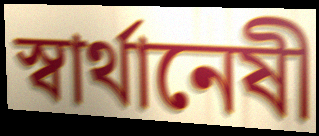
স্বার্থানেষী